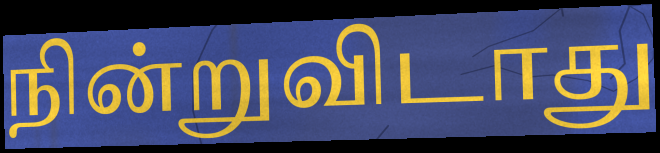
நின்றுவிடாது